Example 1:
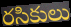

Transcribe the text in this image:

రసికులు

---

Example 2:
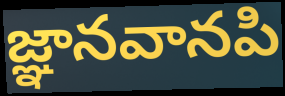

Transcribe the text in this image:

జ్ఞానవానపి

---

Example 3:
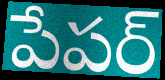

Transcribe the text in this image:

పేపర్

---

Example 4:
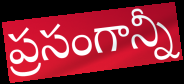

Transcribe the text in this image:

ప్రసంగాన్నీ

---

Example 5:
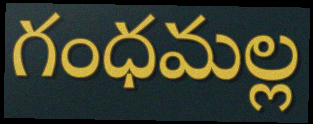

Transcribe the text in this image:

గంధమల్ల